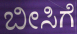
ಬೀಸಿಗೆ